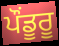
ਪੌਂਡੂਰੂ